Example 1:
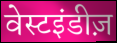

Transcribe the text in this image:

वेस्टइंडीज़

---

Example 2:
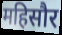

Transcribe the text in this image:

महिसौर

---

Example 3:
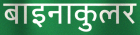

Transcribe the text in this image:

बाइनाकुलर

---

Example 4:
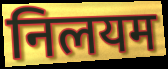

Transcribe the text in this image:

निलयम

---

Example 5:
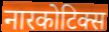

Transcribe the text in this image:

नारकोटिक्स